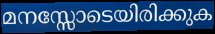
മനസ്സോടെയിരിക്കുക